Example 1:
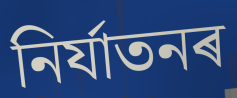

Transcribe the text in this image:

নিৰ্যাতনৰ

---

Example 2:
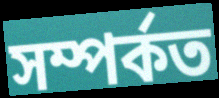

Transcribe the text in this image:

সম্পৰ্কত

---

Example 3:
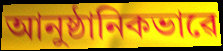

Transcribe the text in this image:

আনুষ্ঠানিকভাৱে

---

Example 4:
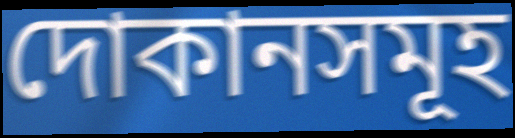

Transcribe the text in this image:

দোকানসমূহ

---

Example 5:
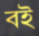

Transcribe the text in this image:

বই